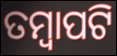
ତମ୍ବାପଟି